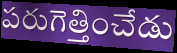
పరుగెత్తించేడు